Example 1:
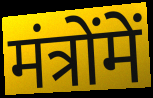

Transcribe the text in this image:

मंत्रोंमें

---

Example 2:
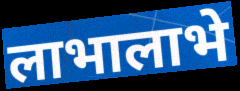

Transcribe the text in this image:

लाभालाभे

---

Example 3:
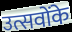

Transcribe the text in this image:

उत्सवोंके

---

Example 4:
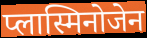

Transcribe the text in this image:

प्लास्मिनोजेन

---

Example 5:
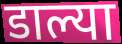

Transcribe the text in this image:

डाल्या